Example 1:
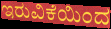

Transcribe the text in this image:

ಇರುವಿಕೆಯಿಂದ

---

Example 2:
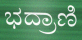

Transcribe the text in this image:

ಭದ್ರಾಣಿ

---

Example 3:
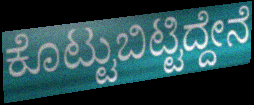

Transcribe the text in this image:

ಕೊಟ್ಟುಬಿಟ್ಟಿದ್ದೇನೆ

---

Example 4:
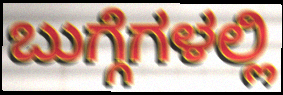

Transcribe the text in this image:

ಬುಗ್ಗೆಗಳಲ್ಲಿ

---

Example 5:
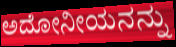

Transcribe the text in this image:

ಅದೋನೀಯನನ್ನು